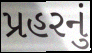
પ્રહરનું